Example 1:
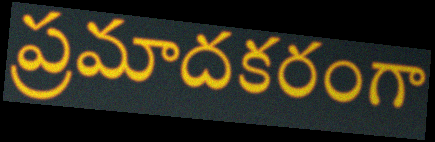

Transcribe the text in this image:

ప్రమాదకరంగా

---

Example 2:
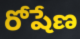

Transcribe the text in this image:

రోషేణ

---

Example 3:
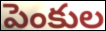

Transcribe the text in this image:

పెంకుల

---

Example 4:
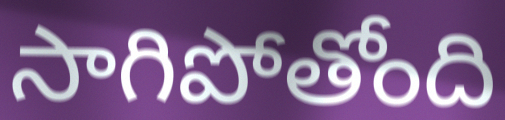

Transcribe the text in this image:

సాగిపోతోంది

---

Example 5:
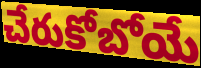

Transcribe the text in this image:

చేరుకోబోయే